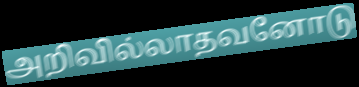
அறிவில்லாதவனோடு